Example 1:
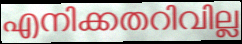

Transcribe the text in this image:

എനിക്കതറിവില്ല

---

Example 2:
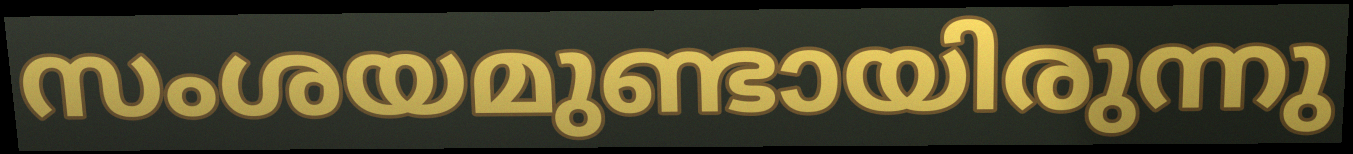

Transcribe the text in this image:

സംശയമുണ്ടായിരുന്നു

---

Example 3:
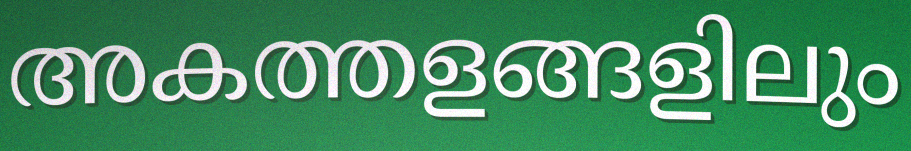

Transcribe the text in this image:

അകത്തളങ്ങളിലും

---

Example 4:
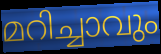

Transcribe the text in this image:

മറിച്ചാവും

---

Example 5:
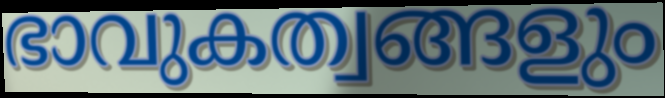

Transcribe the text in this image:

ഭാവുകത്വങ്ങളും